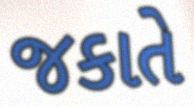
જકાતે